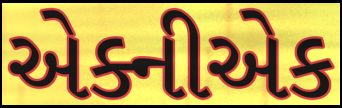
એક્નીએક